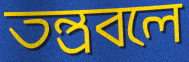
তন্ত্রবলে